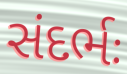
સંદર્ભઃ